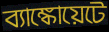
ব্যাঙ্কোয়েটে